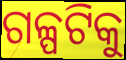
ଗଳ୍ପଟିକୁ